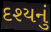
દશ્યનું